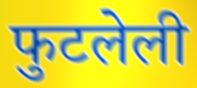
फुटलेली